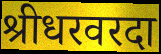
श्रीधरवरदा